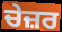
ਚੇਜ਼ਰ